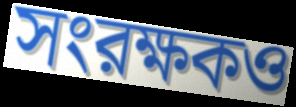
সংরক্ষকও